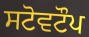
ਸਟੋਵਟੌਪ